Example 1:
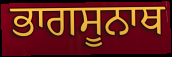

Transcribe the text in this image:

ਭਾਗਸੂਨਾਥ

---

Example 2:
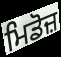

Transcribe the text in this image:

ਮਿਡੋਜ਼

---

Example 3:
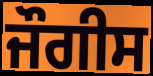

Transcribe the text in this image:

ਜੌਗੀਸ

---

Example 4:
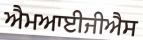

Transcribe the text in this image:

ਐਮਆਈਜੀਐਸ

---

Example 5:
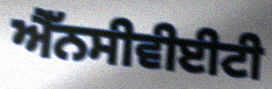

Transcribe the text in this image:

ਐੱਨਸੀਵੀਈਟੀ